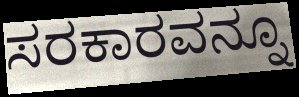
ಸರಕಾರವನ್ನೂ